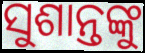
ସୁଶାନ୍ତଙ୍କୁ